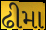
ઢીમા